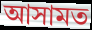
আসামত